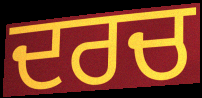
ਦਰਚ